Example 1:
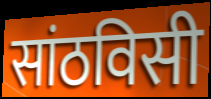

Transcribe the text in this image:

सांठविसी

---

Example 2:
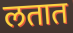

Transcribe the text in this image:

लतात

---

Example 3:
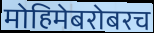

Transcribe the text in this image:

मोहिमेबरोबरच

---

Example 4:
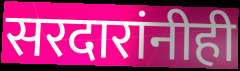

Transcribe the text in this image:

सरदारांनीही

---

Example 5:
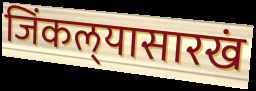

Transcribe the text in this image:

जिंकल्यासारखं